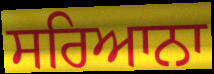
ਸਰਿਆਨਾ